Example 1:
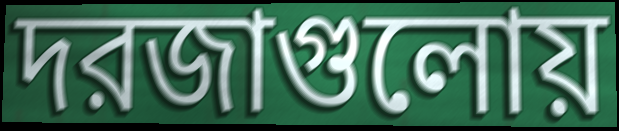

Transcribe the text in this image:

দরজাগুলোয়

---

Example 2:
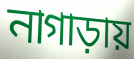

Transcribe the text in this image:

নাগাড়ায়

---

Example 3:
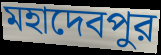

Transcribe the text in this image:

মহাদেবপুর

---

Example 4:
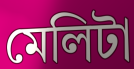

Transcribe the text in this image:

মেলিটা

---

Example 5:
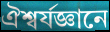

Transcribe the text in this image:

ঐশ্বর্যজ্ঞানে